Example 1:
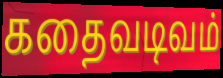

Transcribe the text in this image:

கதைவடிவம்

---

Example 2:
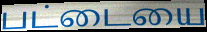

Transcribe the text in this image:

பட்டையை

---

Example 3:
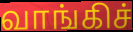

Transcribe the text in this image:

வாங்கிச்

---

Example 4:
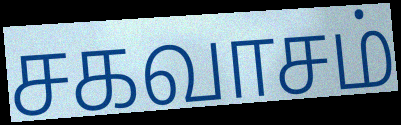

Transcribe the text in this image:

சகவாசம்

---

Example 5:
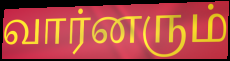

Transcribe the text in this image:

வார்னரும்